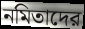
নমিতাদের